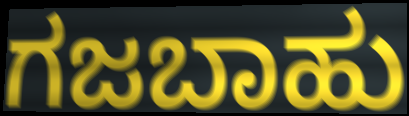
ಗಜಬಾಹು